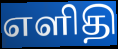
எளிதி